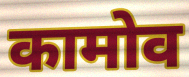
कामोव